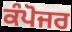
ਕੰਪੋਜਰ